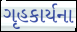
ગૃહકાર્યના